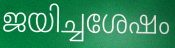
ജയിച്ചശേഷം